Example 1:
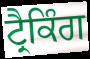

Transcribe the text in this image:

ਟ੍ਰੈਕਿੰਗ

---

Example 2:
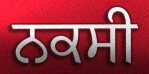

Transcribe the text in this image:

ਨਕਸੀ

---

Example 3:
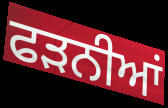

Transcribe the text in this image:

ਫੜਨੀਆਂ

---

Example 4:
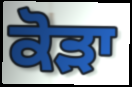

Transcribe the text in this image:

ਕੋੜਾ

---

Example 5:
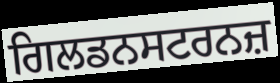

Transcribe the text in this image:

ਗਿਲਡਨਸਟਰਨਜ਼